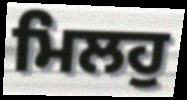
ਮਿਲਹੁ